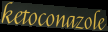
ketoconazole